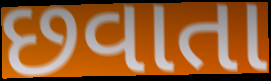
છવાતા